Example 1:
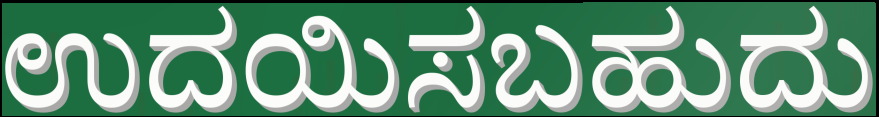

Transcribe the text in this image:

ಉದಯಿಸಬಹುದು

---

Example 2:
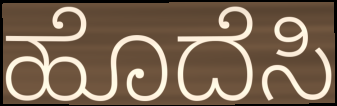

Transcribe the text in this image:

ಹೊದೆಸಿ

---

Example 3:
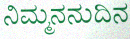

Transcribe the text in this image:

ನಿಮ್ಮನನುದಿನ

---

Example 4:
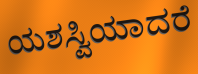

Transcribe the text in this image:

ಯಶಸ್ವಿಯಾದರೆ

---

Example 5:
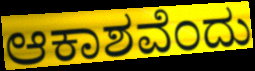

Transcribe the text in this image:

ಆಕಾಶವೆಂದು